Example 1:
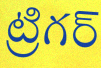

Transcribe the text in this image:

ట్రిగర్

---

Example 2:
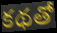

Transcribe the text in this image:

కథతో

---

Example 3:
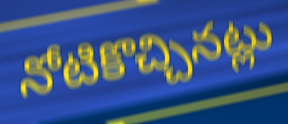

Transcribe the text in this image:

నోటికొచ్చినట్లు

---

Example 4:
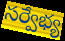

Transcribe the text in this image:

సర్వేభ్య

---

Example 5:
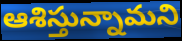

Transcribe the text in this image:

ఆశిస్తున్నామని